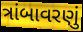
ત્રાંબાવરણું